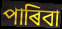
পাৰিবা